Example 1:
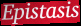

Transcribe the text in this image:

Epistasis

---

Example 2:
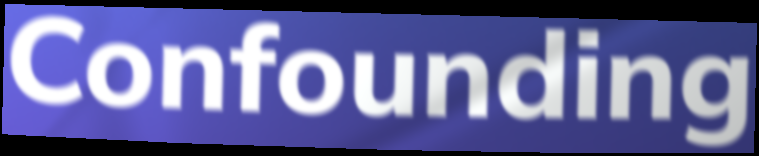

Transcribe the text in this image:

Confounding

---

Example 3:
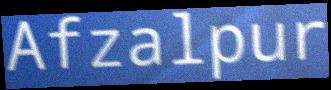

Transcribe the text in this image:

Afzalpur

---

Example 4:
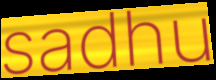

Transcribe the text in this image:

sadhu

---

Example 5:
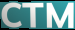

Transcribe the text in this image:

CTM